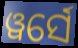
ୱର୍ସେ